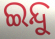
ଇନ୍ଦୁ